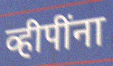
व्हीपींना